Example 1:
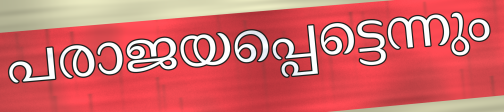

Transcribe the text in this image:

പരാജയപ്പെട്ടെന്നും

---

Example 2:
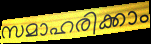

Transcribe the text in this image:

സമാഹരിക്കാം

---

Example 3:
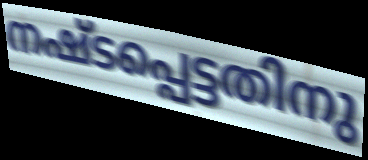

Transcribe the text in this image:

നഷ്ടപ്പെട്ടതിനു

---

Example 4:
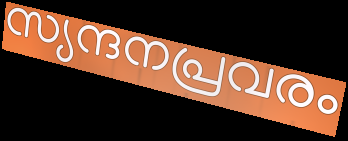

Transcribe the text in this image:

സ്യന്ദനപ്രവരം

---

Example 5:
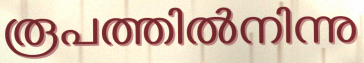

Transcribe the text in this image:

രൂപത്തിൽനിന്നു